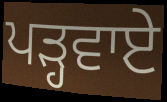
ਪੜ੍ਹਵਾਏ